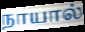
நாயால்